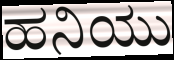
ಹನಿಯು